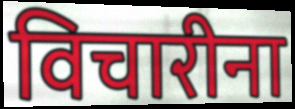
विचारीना